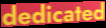
dedicated